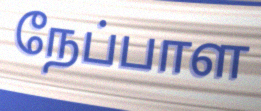
நேப்பாள